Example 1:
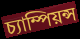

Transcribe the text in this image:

চ্যাম্পিয়ন্স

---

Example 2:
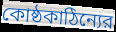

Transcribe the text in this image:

কোষ্ঠকাঠিন্যের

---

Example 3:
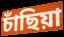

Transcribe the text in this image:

চাঁছিয়া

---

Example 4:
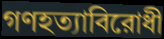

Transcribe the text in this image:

গণহত্যাবিরোধী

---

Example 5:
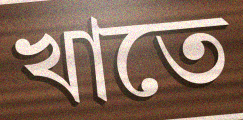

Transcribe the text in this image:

খাতে